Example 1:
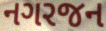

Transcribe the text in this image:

નગરજન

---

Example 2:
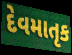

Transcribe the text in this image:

દેવમાતૃક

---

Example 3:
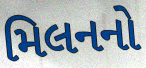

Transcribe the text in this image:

મિલનનો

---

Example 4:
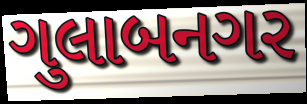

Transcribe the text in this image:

ગુલાબનગર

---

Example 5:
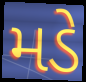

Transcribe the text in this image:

મડે